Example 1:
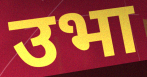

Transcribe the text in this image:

उभा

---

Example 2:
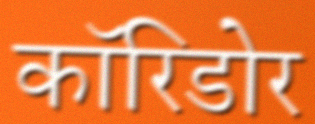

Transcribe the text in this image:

कॉरिडोर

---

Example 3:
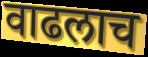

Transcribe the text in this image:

वाढलाच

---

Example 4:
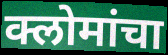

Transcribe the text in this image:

क्लोमांचा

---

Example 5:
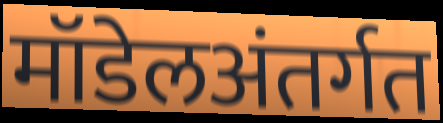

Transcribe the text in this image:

मॉडेलअंतर्गत